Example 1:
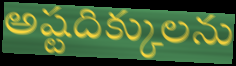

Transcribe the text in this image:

అష్టదిక్కులను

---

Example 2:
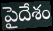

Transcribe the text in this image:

పైదేశం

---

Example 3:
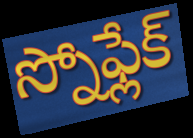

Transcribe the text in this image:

స్నోఫ్లేక్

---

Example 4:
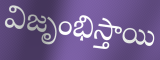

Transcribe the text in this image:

విజృంభిస్తాయి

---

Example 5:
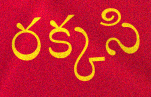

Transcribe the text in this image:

రక్కసి